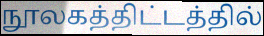
நூலகத்திட்டத்தில்